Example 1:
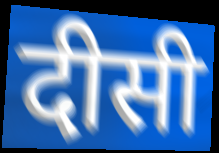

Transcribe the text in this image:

दीसी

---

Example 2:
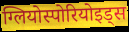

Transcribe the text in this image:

ग्लियोस्पोरियोइड्स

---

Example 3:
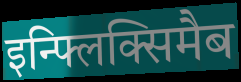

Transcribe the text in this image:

इन्फ्लिक्सिमैब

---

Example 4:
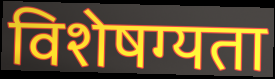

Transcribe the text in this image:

विशेषग्यता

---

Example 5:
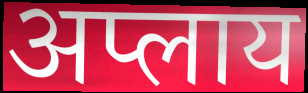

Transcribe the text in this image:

अप्लाय